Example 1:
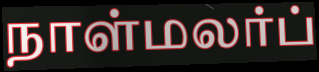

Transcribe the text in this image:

நாள்மலர்ப்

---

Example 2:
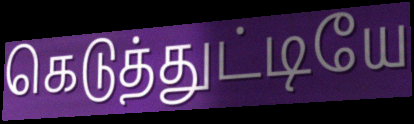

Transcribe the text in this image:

கெடுத்துட்டியே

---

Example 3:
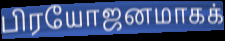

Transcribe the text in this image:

பிரயோஜனமாகக்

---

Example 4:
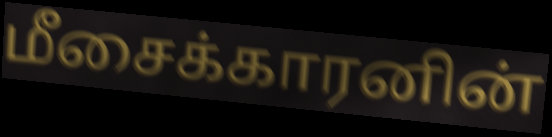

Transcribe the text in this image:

மீசைக்காரனின்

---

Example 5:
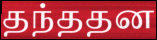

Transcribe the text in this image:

தந்ததன